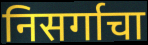
निसर्गाचा